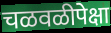
चळवळीपेक्षा